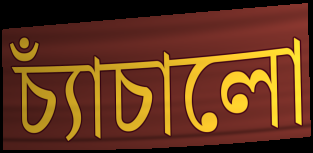
চ্যাঁচালো